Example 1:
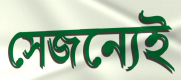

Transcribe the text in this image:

সেজন্যেই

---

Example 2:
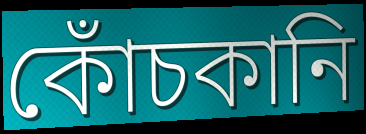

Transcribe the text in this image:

কোঁচকানি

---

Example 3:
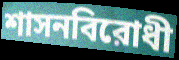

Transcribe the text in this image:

শাসনবিরোধী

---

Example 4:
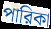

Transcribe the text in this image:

পারিকা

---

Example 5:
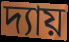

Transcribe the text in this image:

দ্যায়